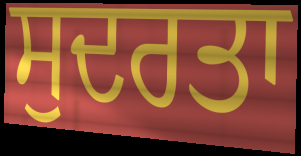
ਸੁਦਰਤਾ